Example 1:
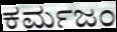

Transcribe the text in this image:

ಕರ್ಮಜಂ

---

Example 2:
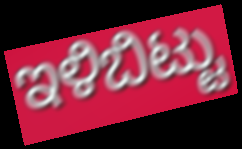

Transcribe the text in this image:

ಇಳಿಬಿಟ್ಟು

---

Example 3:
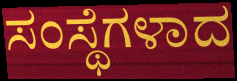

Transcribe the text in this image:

ಸಂಸ್ಥೆಗಳಾದ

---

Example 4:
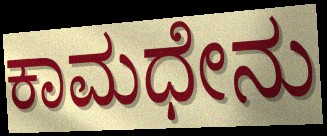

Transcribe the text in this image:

ಕಾಮಧೇನು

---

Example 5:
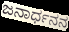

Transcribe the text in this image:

ಜನಾರ್ಧನನ